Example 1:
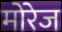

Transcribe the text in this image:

मोरेज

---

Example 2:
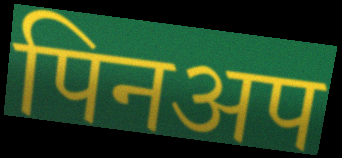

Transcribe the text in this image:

पिनअप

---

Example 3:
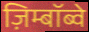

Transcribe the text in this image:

ज़िम्बॉब्वे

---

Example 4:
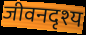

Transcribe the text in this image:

जीवनदृश्य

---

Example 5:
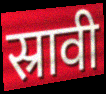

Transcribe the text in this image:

स्रावी